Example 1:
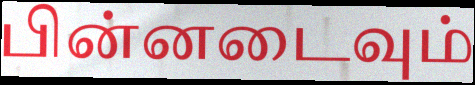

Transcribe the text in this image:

பின்னடைவும்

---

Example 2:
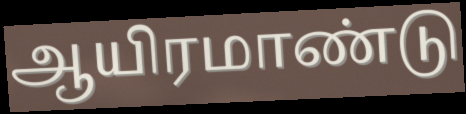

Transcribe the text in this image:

ஆயிரமாண்டு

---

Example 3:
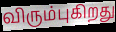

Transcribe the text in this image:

விரும்புகிறது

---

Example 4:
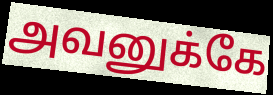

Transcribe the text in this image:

அவனுக்கே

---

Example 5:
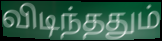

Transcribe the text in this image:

விடிந்ததும்